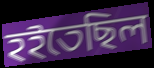
হইতেছিল